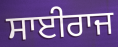
ਸਾਈਰਾਜ